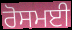
ਰੋਸਮਈ